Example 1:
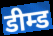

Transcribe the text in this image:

डीम्ड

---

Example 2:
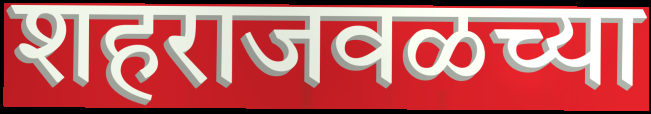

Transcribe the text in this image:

शहराजवळच्या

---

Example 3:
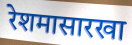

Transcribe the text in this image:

रेशमासारखा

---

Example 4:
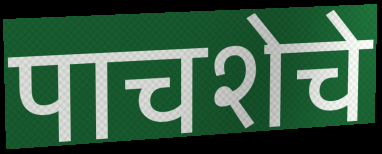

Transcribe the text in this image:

पाचशेचे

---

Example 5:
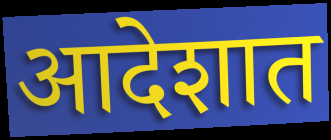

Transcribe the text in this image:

आदेशात